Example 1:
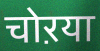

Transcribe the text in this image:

चोऱया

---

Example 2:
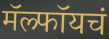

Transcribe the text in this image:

मॅल्फॉयचं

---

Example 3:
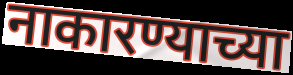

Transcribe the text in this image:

नाकारण्याच्या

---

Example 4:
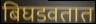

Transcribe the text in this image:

बिघडवतात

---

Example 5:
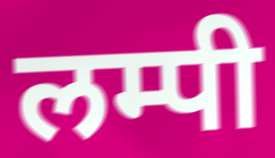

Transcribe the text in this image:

लम्पी